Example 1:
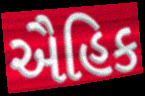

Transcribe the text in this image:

ઐહિક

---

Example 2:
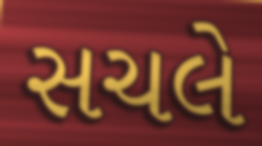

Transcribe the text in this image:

સચલે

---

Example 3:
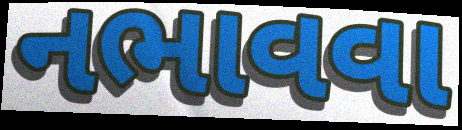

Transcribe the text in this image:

નભાવવા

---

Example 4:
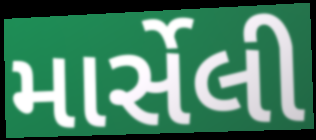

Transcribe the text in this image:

માર્સેલી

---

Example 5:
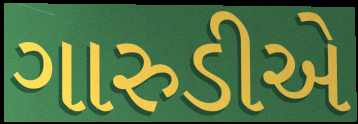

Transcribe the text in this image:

ગારુડીએ